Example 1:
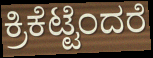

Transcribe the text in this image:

ಕ್ರಿಕೆಟ್ಟೆಂದರೆ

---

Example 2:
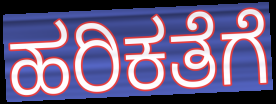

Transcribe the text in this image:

ಹರಿಕತೆಗೆ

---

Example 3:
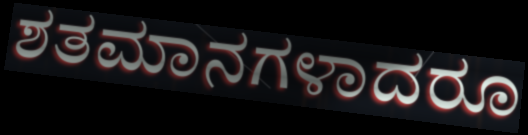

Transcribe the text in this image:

ಶತಮಾನಗಳಾದರೂ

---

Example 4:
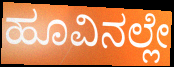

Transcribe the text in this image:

ಹೂವಿನಲ್ಲೇ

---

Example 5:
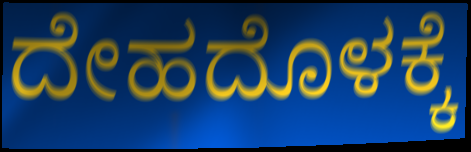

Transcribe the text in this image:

ದೇಹದೊಳಕ್ಕೆ